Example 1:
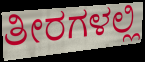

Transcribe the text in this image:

ತೀರಗಳಲ್ಲಿ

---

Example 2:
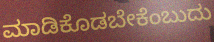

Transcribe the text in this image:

ಮಾಡಿಕೊಡಬೇಕೆಂಬುದು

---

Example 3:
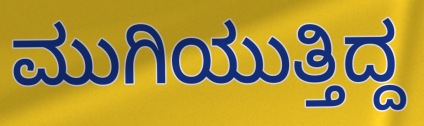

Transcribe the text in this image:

ಮುಗಿಯುತ್ತಿದ್ದ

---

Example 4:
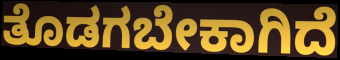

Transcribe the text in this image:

ತೊಡಗಬೇಕಾಗಿದೆ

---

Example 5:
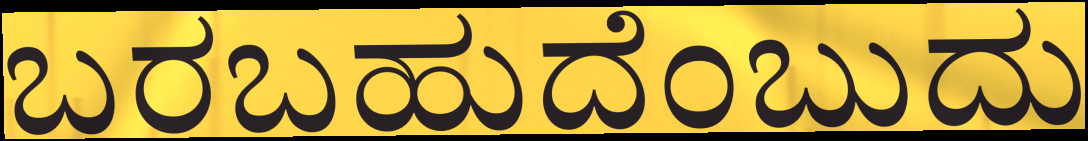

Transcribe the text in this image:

ಬರಬಹುದೆಂಬುದು